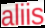
aliis